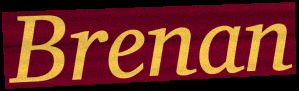
Brenan